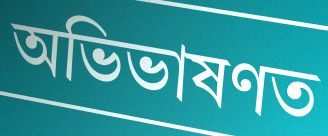
অভিভাষণত